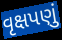
વૃક્ષપણું